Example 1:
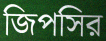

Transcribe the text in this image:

জিপসির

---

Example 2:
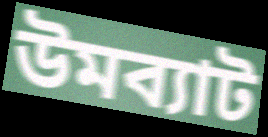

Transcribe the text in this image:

উমব্যাট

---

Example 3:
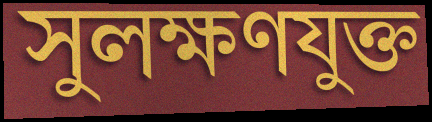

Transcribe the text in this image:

সুলক্ষণযুক্ত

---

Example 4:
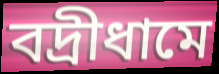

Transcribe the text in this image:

বদ্রীধামে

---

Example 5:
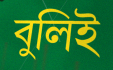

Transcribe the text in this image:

বুলিই